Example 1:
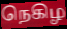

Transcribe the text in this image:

நெகிழ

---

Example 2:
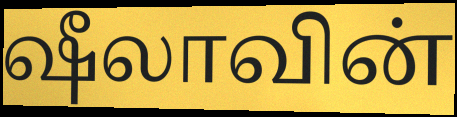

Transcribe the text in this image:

ஷீலாவின்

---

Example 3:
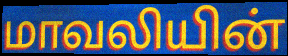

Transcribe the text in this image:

மாவலியின்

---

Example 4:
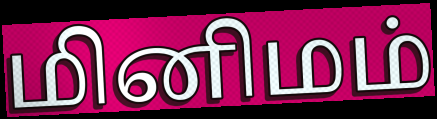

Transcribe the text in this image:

மினிமம்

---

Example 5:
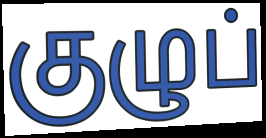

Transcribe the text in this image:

குழுப்